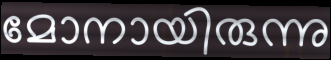
മോനായിരുന്നു